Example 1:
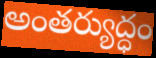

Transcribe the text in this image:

అంతర్యుద్ధం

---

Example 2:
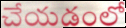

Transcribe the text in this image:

చేయడంలో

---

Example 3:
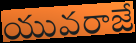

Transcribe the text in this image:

యువరాజే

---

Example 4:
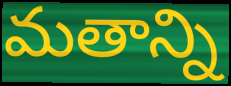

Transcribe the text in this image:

మతాన్ని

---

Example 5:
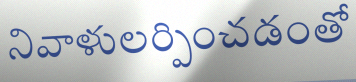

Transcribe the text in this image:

నివాళులర్పించడంతో